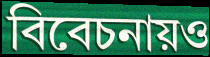
বিবেচনায়ও